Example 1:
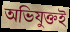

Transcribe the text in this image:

অভিযুক্তই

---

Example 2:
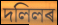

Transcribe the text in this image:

দলিলৰ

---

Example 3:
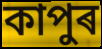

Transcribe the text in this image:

কাপুৰ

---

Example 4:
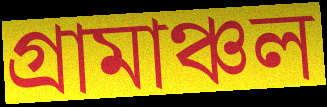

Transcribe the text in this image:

গ্ৰামাঞ্চল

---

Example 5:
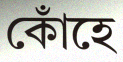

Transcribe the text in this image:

কোঁহে